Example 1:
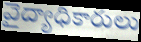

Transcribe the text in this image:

వైద్యాధికారులు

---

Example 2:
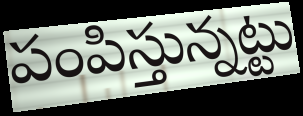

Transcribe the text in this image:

పంపిస్తున్నట్టు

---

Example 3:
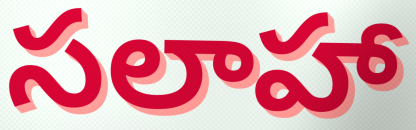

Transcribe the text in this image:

సలాహా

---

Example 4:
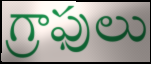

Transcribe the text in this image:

గ్రాఫులు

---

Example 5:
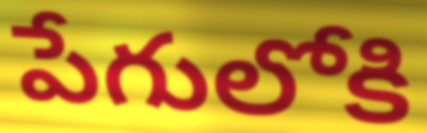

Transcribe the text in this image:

పేగులోకి